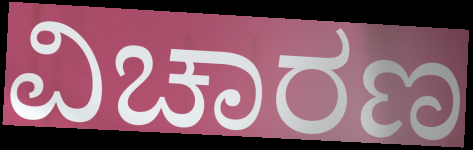
ವಿಚಾರಣ